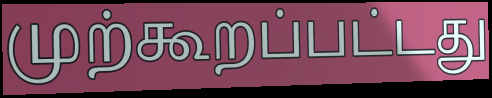
முற்கூறப்பட்டது